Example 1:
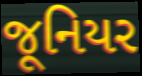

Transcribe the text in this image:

જૂનિયર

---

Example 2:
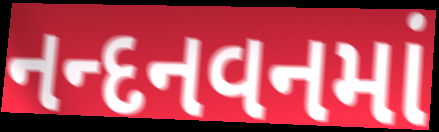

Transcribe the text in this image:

નન્દનવનમાં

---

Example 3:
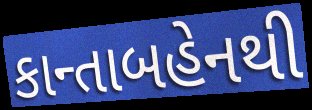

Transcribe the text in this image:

કાન્તાબહેનથી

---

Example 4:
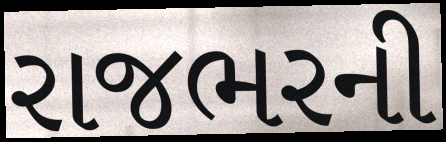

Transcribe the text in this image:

રાજભરની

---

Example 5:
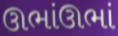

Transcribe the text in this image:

ઊભાંઊભાં